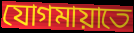
যোগমায়াতে